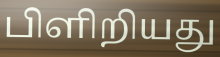
பிளிறியது